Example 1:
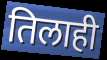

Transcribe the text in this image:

तिलाही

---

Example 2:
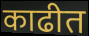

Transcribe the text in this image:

काढीत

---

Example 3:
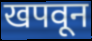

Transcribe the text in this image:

खपवून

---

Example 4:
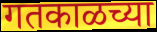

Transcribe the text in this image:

गतकाळच्या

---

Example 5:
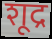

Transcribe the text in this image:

शूद्र